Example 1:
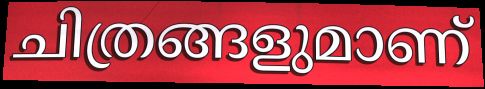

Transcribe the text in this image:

ചിത്രങ്ങളുമാണ്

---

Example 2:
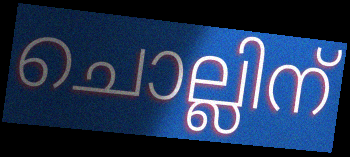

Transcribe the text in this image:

ചൊല്ലിന്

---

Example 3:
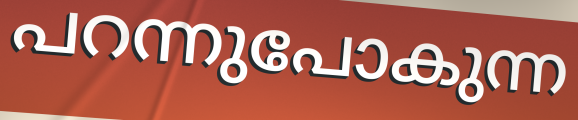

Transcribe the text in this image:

പറന്നുപോകുന്ന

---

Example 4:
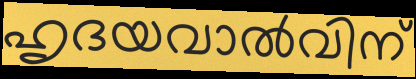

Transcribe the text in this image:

ഹൃദയവാൽവിന്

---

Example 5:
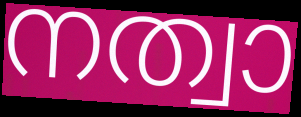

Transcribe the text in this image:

നത്വാ